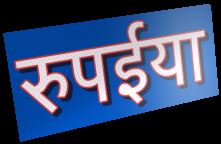
रुपईया